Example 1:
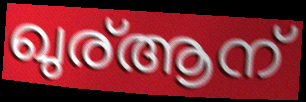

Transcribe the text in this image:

ഖുര്ആന്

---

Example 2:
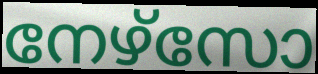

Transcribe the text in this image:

നേഴ്സോ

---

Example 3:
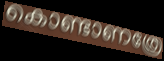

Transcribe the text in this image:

കൊണ്ടാണത്രേ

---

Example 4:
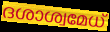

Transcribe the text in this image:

ദശാശ്വമേധ്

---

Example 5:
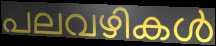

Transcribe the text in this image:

പലവഴികൾ